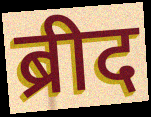
ब्रीद